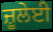
ਜ਼ੂਲੇਈ